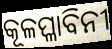
କୂଳପ୍ଳାବିନୀ